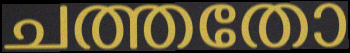
ചത്തതോ